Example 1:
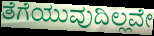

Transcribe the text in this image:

ತೆಗೆಯುವುದಿಲ್ಲವೇ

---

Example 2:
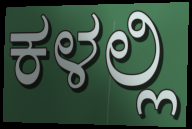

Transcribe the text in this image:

ಕಳಲ್ಲಿ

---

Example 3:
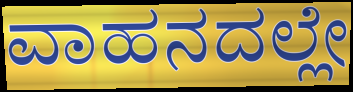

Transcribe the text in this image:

ವಾಹನದಲ್ಲೇ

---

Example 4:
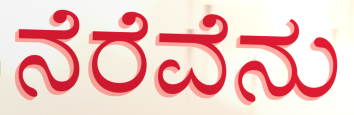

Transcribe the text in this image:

ನೆರೆವೆನು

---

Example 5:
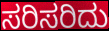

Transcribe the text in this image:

ಸರಿಸರಿದು